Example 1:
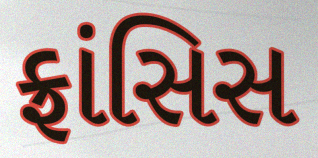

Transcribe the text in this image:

ફ્રાંસિસ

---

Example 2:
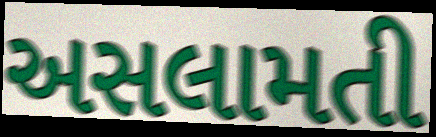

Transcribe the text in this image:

અસલામતી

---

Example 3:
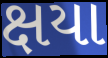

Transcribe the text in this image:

ક્ષયા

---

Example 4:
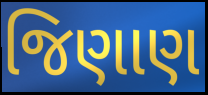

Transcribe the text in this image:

જિણાણ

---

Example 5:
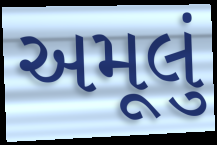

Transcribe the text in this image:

અમૂલું